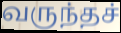
வருந்தச்